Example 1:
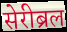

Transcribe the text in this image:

सेरीब्रल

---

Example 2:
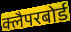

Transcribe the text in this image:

क्लैपरबोर्ड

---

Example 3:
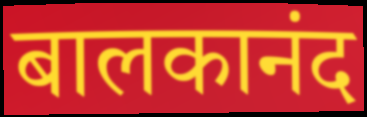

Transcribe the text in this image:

बालकानंद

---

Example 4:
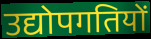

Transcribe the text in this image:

उद्योपगतियों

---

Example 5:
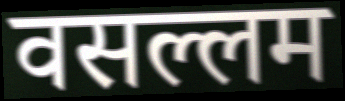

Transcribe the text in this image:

वसल्लम